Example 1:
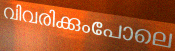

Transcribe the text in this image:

വിവരിക്കുംപോലെ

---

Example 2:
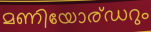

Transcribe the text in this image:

മണിയോര്ഡറും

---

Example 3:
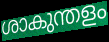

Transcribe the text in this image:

ശാകുന്തളം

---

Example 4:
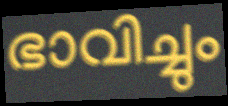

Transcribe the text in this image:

ഭാവിച്ചും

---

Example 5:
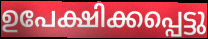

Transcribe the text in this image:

ഉപേക്ഷിക്കപ്പെട്ടു